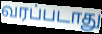
வரப்படாது